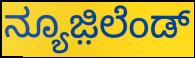
ನ್ಯೂಜ಼ಿಲೆಂಡ್